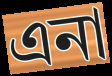
এনা